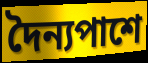
দৈন্যপাশে